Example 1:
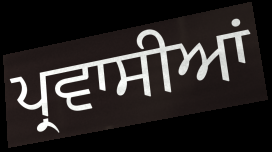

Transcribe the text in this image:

ਪ੍ਰਵਾਸੀਆਂ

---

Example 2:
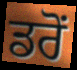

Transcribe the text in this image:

ਡਰੋਂ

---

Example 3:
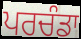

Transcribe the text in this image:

ਪਰਚੰਡਾ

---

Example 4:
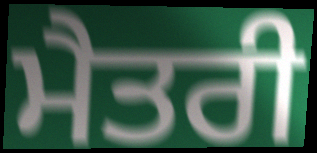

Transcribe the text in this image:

ਮੈਤਰੀ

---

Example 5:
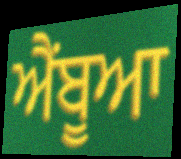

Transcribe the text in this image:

ਐਂਬੂਆ